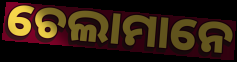
ଚେଲାମାନେ